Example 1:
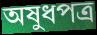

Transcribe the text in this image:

অষুধপত্র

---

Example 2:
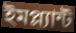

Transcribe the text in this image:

ইমপ্ল্যান্ট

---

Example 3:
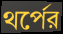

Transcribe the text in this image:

থর্পের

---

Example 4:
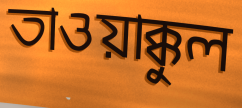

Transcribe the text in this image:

তাওয়াক্কুল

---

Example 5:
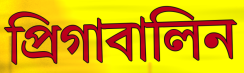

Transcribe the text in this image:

প্রিগাবালিন